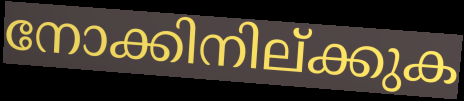
നോക്കിനില്ക്കുക